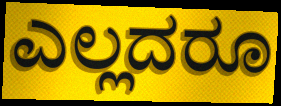
ಎಲ್ಲದರೂ